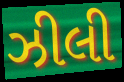
ઝીલી